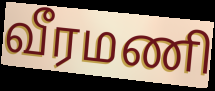
வீரமணி